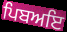
ਪਿਬਅਇ